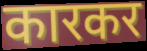
कारकर